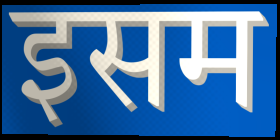
इसम